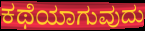
ಕಥೆಯಾಗುವುದು